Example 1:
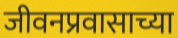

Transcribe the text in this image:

जीवनप्रवासाच्या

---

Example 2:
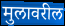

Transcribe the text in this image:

मुलावरील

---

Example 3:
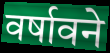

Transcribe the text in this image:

वर्षावने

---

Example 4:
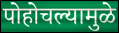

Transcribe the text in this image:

पोहोचल्यामुळे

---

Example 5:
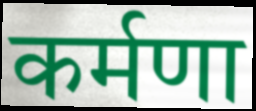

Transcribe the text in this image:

कर्मणा